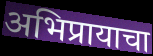
अभिप्रायाचा